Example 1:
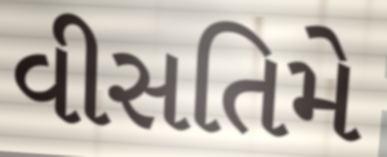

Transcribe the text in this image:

વીસતિમે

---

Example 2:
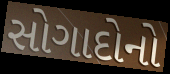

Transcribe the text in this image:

સોગાદોનો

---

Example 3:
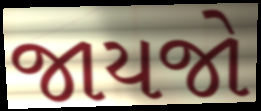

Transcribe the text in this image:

જાયજો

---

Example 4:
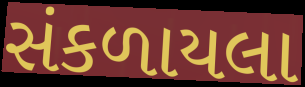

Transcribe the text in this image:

સંકળાયલા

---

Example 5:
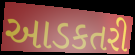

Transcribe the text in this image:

આડકતરી